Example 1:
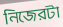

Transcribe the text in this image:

নিজেরটা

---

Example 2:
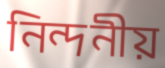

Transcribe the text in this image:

নিন্দনীয়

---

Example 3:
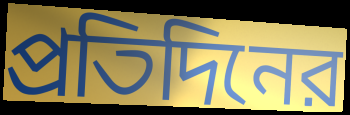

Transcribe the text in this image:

প্রতিদিনের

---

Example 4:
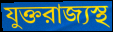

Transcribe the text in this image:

যুক্তরাজ্যস্থ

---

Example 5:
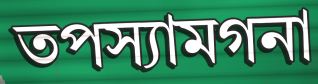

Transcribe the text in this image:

তপস্যামগনা